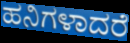
ಹನಿಗಳಾದರೆ